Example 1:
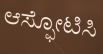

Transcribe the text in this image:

ಆಸ್ಫೋಟಿಸಿ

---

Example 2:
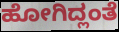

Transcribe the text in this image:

ಹೋಗಿದ್ಲಂತೆ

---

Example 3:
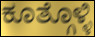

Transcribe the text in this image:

ಕೂತ್ಗೊಳ್ಳಿ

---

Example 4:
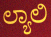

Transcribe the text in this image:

ಲ್ಯಾಲಿ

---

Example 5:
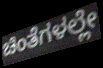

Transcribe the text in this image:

ಚಿಂತೆಗಳಲ್ಲೇ